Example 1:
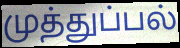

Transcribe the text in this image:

முத்துப்பல்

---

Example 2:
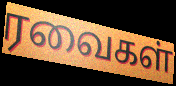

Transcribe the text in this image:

ரவைகள்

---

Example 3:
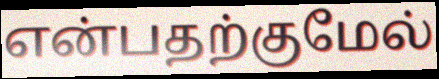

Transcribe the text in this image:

என்பதற்குமேல்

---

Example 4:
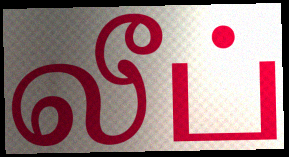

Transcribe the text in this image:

லீப்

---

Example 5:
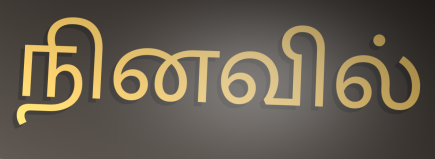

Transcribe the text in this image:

நினவில்